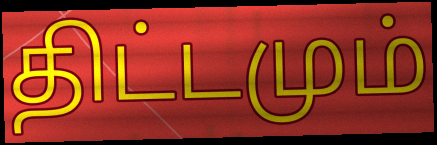
திட்டமும்